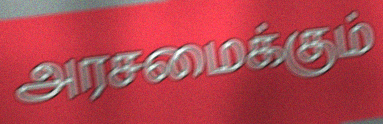
அரசமைக்கும்